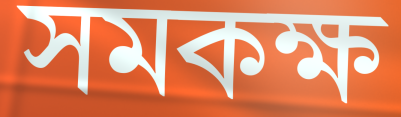
সমকক্ষ